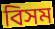
বিসম